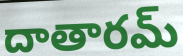
దాతారమ్